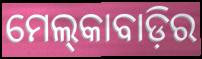
ମେଲ୍‌କାବାଡ଼ିର